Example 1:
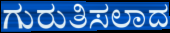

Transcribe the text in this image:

ಗುರುತಿಸಲಾದ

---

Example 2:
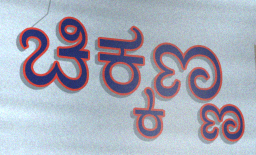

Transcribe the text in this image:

ಚಿಕ್ಕಣ್ಣ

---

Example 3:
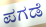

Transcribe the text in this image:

ಪಗಡೆ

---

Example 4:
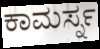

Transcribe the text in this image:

ಕಾಮರ್ಸ್ನ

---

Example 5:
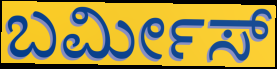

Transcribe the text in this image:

ಬರ್ಮೀಸ್